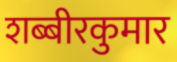
शब्बीरकुमार